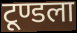
टूण्डला